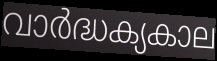
വാർദ്ധക്യകാല